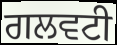
ਗਲਵਟੀ